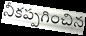
నీకప్పగించిన